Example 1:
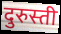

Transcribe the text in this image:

दुरुस्ती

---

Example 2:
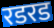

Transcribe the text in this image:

रडरड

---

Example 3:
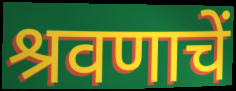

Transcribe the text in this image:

श्रवणाचें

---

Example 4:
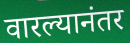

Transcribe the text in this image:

वारल्यानंतर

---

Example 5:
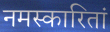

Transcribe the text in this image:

नमस्कारितां